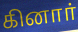
கினார்